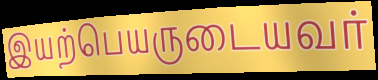
இயற்பெயருடையவர்